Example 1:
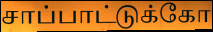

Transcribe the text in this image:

சாப்பாட்டுக்கோ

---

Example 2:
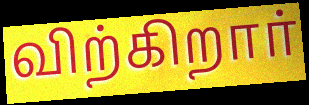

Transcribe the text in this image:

விற்கிறார்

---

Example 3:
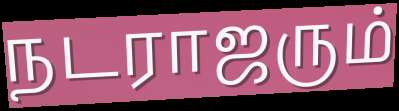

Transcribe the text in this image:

நடராஜரும்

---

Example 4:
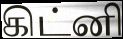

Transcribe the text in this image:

கிட்னி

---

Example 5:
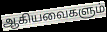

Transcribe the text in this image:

ஆகியவைகளும்